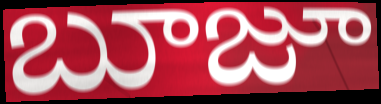
బూజూ